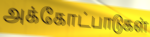
அக்கோட்பாடுகள்